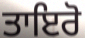
ਤਾਇਰੋ